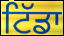
ਟਿੱਡਾ